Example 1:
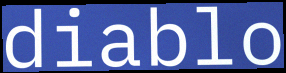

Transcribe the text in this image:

diablo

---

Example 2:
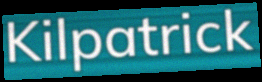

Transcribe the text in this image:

Kilpatrick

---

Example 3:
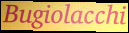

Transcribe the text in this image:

Bugiolacchi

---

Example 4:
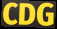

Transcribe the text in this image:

CDG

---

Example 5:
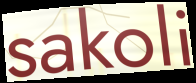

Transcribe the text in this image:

sakoli